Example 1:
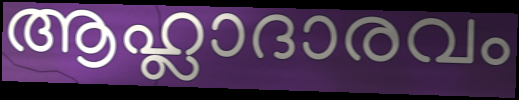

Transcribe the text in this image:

ആഹ്ലാദാരവം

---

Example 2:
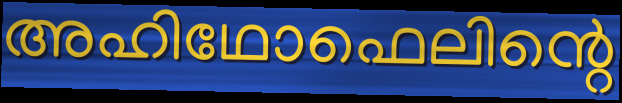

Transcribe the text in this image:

അഹിഥോഫെലിന്റെ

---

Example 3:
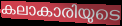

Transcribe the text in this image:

കലാകാരിയുടെ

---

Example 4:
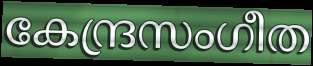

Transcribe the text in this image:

കേന്ദ്രസംഗീത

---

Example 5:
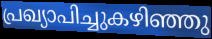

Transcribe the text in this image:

പ്രഖ്യാപിച്ചുകഴിഞ്ഞു